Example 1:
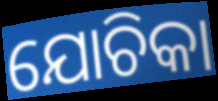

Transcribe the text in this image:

ଯୋଚିକା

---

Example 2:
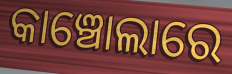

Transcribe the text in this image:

କାଞ୍ଚୋଲାରେ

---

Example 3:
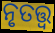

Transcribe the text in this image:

ନୃତତ୍ତ୍ଵ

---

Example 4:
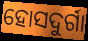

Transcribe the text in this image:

ହୋସଦୁର୍ଗା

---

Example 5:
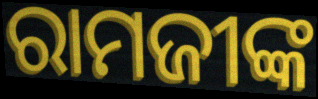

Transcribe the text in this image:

ରାମଜୀଙ୍କ